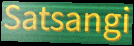
Satsangi